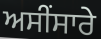
ਅਸੀਂਸਾਰੇ